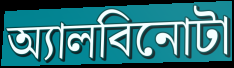
অ্যালবিনোটা